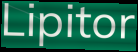
Lipitor